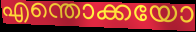
എന്തൊക്കയോ